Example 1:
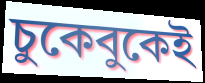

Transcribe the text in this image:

চুকেবুকেই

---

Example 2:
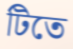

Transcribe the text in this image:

টিতে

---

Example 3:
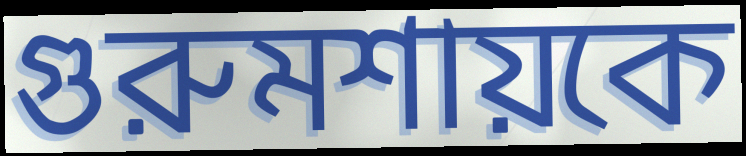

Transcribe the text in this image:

গুরুমশায়কে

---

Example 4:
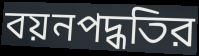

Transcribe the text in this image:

বয়নপদ্ধতির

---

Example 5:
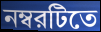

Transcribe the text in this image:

নম্বরটিতে